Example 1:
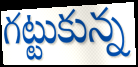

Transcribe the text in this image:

గట్టుకున్న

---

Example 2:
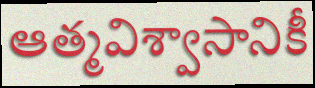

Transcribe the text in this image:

ఆత్మవిశ్వాసానికీ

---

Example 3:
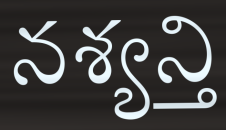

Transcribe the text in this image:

నశ్యన్తి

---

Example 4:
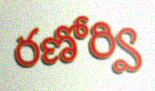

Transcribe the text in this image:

రణోర్వి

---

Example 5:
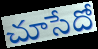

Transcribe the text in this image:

చూసేదో